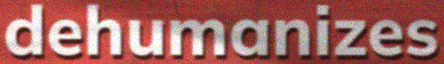
dehumanizes